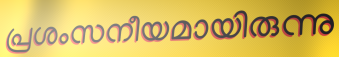
പ്രശംസനീയമായിരുന്നു